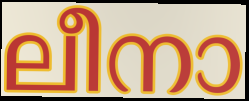
ലീനാ